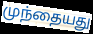
முந்தையது